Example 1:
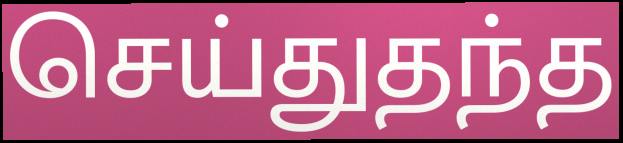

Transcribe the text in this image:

செய்துதந்த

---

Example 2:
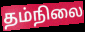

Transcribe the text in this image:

தம்நிலை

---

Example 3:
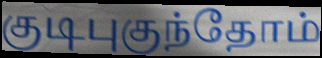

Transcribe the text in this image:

குடிபுகுந்தோம்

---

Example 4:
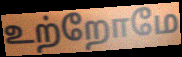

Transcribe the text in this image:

உற்றோமே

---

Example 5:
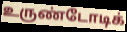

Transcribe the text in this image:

உருண்டோடிக்